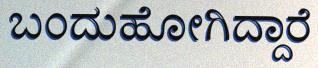
ಬಂದುಹೋಗಿದ್ದಾರೆ